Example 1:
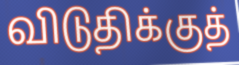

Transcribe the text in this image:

விடுதிக்குத்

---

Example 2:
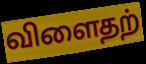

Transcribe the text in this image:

விளைதற்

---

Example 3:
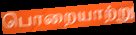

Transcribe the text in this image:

பொறையாற்று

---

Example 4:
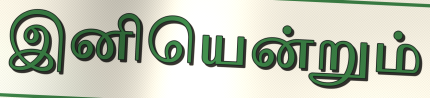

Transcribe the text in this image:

இனியென்றும்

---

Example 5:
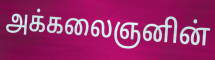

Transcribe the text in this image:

அக்கலைஞனின்